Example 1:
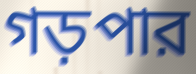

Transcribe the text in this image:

গড়পার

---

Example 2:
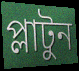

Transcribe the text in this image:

প্লাটুন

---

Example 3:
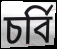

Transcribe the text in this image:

চর্বি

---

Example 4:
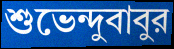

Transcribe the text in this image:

শুভেন্দুবাবুর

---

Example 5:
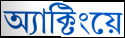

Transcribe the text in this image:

অ্যাক্টিংয়ে